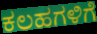
ಕಲಹಗಳಿಗೆ